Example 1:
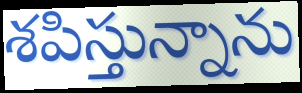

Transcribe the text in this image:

శపిస్తున్నాను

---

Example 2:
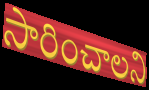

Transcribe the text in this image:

సారించాలని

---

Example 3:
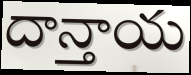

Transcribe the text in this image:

దాన్తాయ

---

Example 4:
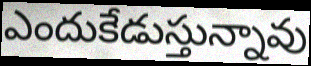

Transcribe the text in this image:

ఎందుకేడుస్తున్నావు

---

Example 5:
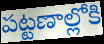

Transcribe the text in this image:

పట్టణాల్లోకి